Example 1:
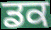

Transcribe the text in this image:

ਡਕ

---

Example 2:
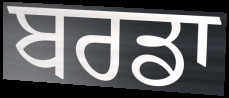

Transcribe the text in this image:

ਬਰਡਾ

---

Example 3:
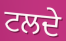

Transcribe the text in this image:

ਟਲਦੇ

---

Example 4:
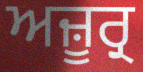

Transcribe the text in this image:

ਅਜ਼ੂਰ੍ਰ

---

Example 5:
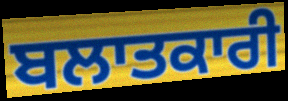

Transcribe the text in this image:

ਬਲਾਤਕਾਰੀ